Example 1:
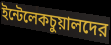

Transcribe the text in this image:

ইন্টেলেকচুয়ালদের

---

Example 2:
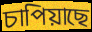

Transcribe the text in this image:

চাপিয়াছে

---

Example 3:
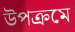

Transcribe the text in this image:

উপক্রমে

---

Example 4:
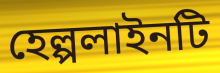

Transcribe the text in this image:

হেল্পলাইনটি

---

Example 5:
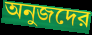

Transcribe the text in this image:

অনুজদের